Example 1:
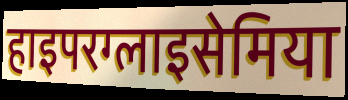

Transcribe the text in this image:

हाइपरग्लाइसेमिया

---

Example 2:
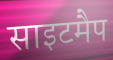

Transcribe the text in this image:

साइटमैप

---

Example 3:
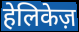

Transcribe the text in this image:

हेलिकेज़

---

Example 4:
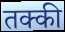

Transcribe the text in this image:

तक्की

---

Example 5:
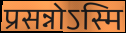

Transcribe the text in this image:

प्रसन्नोऽस्मि